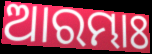
ଆରମ୍ଭାଃ